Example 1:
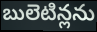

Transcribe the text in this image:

బులెటిన్లను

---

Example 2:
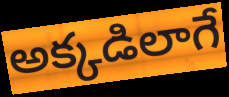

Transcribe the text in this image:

అక్కడిలాగే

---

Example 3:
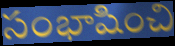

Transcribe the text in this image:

సంభాషించి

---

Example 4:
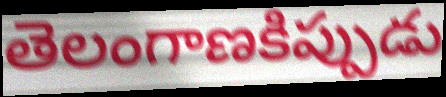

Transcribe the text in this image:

తెలంగాణకిప్పుడు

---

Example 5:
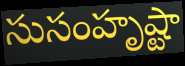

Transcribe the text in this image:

సుసంహృష్టా